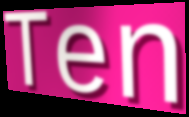
Ten